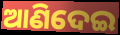
ଆଣିଦେଇ